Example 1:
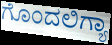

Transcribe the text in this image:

ಗೊಂದಲಿಗ್ಯಾ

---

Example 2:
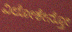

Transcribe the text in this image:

ವಿಲೋಕೇನ್ತೋ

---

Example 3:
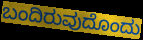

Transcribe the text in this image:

ಬಂದಿರುವುದೊಂದು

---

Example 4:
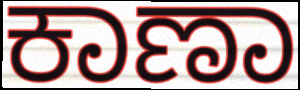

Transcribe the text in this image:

ಕಾಣಾ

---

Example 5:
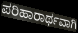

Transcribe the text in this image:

ಪರಿಹಾರಾರ್ಥವಾಗಿ